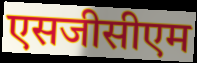
एसजीसीएम